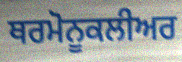
ਥਰਮੋਨੂਕਲੀਅਰ